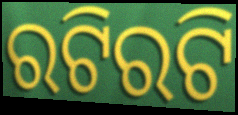
ରଟିରଟି